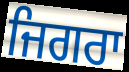
ਜਿਗਰਾ